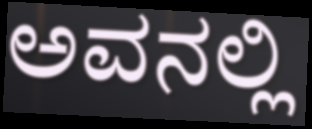
ಅವನಲ್ಲಿ